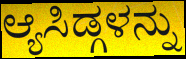
ಆ್ಯಸಿಡ್ಗಳನ್ನು